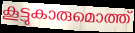
കൂട്ടുകാരുമൊത്ത്